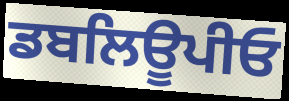
ਡਬਲਿਊਪੀਓ